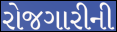
રોજગારીની